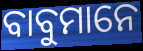
ବାବୁମାନେ